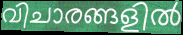
വിചാരങ്ങളിൽ